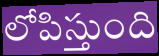
లోపిస్తుంది